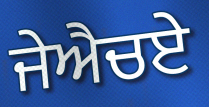
ਜੇਐਚਏ